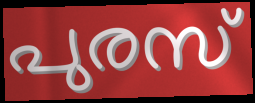
പുരസ്